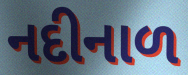
નદીનાળ